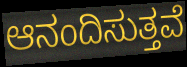
ಆನಂದಿಸುತ್ತವೆ